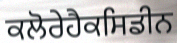
ਕਲੋਰੇਹੈਕਸਿਡੀਨ